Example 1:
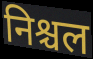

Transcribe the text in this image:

निश्चल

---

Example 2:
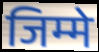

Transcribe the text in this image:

जिम्मे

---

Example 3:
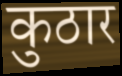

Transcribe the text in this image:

कुठार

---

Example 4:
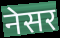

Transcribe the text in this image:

नेसर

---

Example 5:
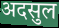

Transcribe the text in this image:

अदसुल